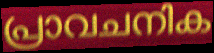
പ്രാവചനിക